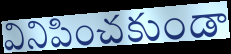
వినిపించకుండా